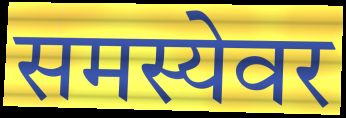
समस्येवर